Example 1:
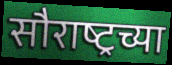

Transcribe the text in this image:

सौराष्ट्रच्या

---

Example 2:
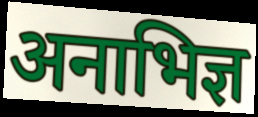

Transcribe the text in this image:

अनाभिज्ञ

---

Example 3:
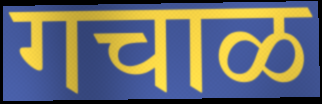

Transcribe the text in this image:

गचाळ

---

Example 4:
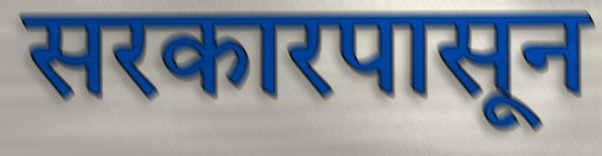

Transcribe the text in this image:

सरकारपासून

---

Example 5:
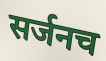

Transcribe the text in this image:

सर्जनच